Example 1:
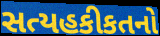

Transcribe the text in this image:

સત્યહકીકતનો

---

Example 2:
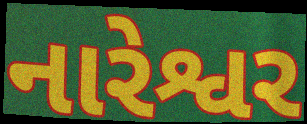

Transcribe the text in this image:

નારેશ્વર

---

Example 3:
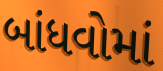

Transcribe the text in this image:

બાંધવોમાં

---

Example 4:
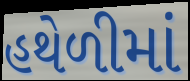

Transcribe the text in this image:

હથેળીમાં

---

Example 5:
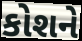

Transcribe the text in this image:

કોશને